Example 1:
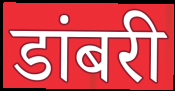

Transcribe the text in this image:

डांबरी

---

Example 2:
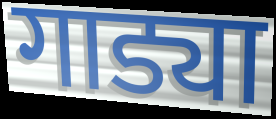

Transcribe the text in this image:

गाड्या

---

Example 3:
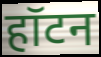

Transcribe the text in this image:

हॉटन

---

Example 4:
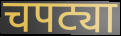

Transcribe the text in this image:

चपट्या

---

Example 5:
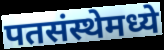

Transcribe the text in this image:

पतसंस्थेमध्ये